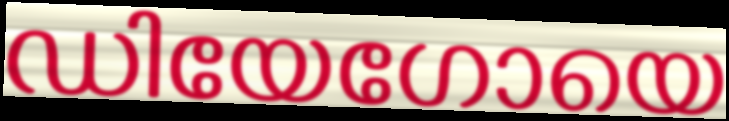
ഡിയേഗോയെ